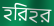
হরিহর